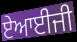
ਏਆਈਜੀ